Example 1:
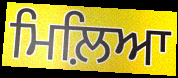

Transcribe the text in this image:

ਮਿਲ਼ਿਆ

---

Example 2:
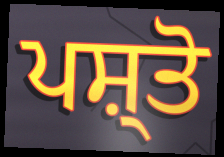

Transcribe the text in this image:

ਪਸ਼੍ਤੋ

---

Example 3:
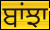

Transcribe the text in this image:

ਬਾਂਝਾ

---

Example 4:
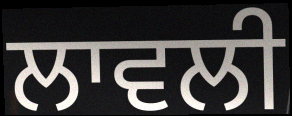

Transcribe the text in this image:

ਲਾਵਲੀ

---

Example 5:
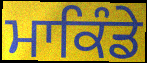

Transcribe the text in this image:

ਮਾਕਿੰਡੇ